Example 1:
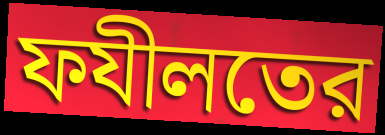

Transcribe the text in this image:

ফযীলতের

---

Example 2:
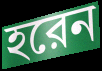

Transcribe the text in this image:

হরেন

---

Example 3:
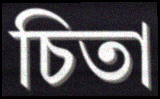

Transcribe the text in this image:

চিতা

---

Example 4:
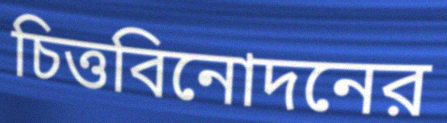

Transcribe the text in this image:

চিত্তবিনোদনের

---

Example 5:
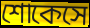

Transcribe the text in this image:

শোকেসে